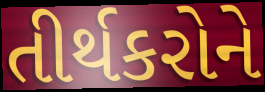
તીર્થકરોને